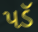
પડૅ